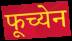
फूच्येन